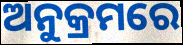
ଅନୁକ୍ରମରେ